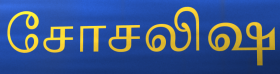
சோசலிஷ